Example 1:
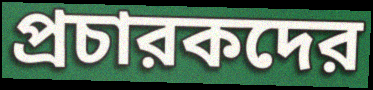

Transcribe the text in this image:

প্রচারকদের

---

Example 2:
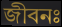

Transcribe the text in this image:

জীবনঃ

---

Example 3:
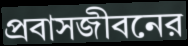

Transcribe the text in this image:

প্রবাসজীবনের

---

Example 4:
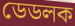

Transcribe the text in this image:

ডেডলক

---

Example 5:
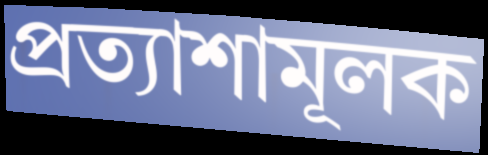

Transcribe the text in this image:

প্রত্যাশামূলক